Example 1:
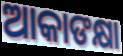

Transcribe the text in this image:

ଆକାଙକ୍ଷା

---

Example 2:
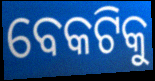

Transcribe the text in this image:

ବେକଟିକୁ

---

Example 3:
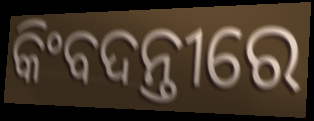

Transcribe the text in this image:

କିଂବଦନ୍ତୀରେ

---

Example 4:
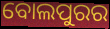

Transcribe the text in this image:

ବୋଲପୁରର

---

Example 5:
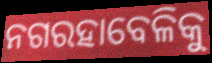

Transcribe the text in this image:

ନଗରହାବେଳିକୁ